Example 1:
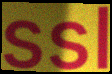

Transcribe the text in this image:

ssl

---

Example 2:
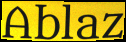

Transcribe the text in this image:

Ablaz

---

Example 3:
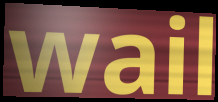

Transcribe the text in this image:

wail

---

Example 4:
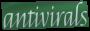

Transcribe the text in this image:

antivirals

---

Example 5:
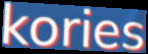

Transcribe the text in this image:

kories